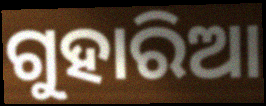
ଗୁହାରିଆ